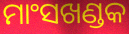
ମାଂସଖଣ୍ଡକ